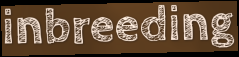
inbreeding